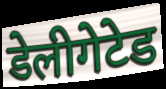
डेलीगेटेड